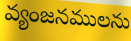
వ్యంజనములను